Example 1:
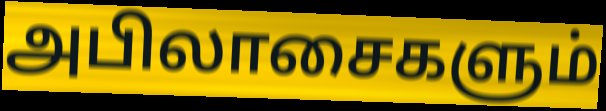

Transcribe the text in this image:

அபிலாசைகளும்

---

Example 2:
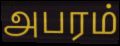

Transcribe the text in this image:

அபரம்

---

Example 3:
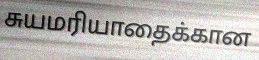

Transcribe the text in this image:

சுயமரியாதைக்கான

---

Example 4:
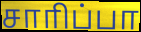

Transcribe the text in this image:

சாரிப்பா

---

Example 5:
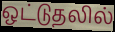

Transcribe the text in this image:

ஒட்டுதலில்